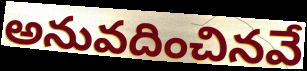
అనువదించినవే